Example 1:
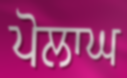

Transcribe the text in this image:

ਪੋਲਾਘ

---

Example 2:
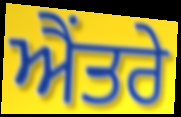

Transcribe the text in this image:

ਐਂਤਰੇ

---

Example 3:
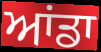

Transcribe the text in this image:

ਆਂਡਾ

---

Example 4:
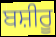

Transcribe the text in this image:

ਬਸ਼ੀਰੂ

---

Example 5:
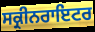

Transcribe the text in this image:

ਸਕ੍ਰੀਨਰਾਇਟਰ